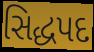
સિદ્ધપદ